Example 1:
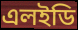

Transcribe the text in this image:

এলইডি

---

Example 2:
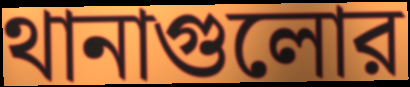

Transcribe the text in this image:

থানাগুলোর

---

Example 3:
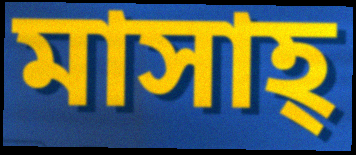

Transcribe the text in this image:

মাসাহ্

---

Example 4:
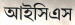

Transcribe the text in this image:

আইসিএস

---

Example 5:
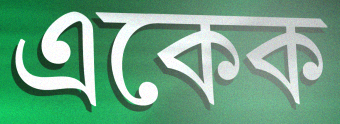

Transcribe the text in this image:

একেক